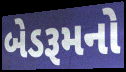
બેડરૂમનો